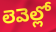
లెవెల్లో